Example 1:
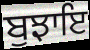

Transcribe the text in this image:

ਬੁਝਾਇ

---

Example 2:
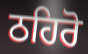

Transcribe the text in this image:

ਠਹਿਰੋ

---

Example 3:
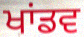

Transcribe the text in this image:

ਖਾਂਡਵ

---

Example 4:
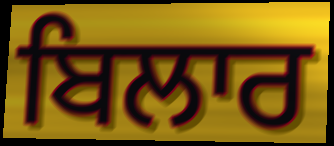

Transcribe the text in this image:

ਬਿਲਾਰ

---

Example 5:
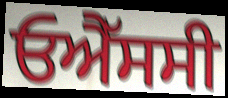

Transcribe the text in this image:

ਓਐੱਸਸੀ